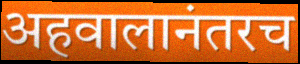
अहवालानंतरच